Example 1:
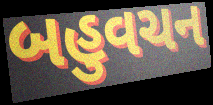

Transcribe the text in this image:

બહુવચન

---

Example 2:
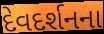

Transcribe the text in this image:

દેવદર્શનના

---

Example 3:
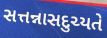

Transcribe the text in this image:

સત્તન્નાસદુચ્યતે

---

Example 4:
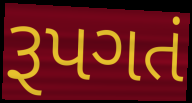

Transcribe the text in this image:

રૂપગતં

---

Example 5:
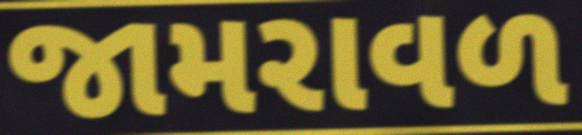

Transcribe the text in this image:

જામરાવળ